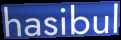
hasibul